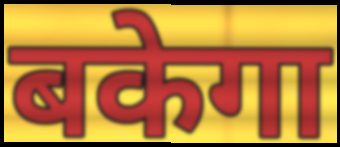
बकेगा